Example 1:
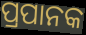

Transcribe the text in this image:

ପ୍ରପାନକ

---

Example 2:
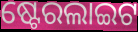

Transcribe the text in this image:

ଷ୍ଟେରଲାଇଟ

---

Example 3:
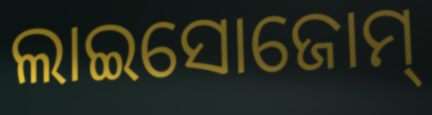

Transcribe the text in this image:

ଲାଇସୋଜୋମ୍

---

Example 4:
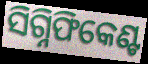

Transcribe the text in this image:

ସିଗ୍ନିଫିକେଣ୍ଟ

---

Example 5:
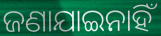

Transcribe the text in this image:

ଜଣାଯାଇନାହିଁ